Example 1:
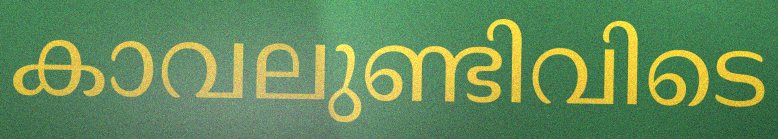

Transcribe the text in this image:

കാവലുണ്ടിവിടെ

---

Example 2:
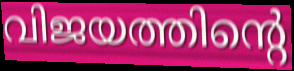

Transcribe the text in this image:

വിജയത്തിന്റെ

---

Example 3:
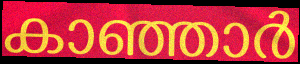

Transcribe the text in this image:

കാഞ്ഞാർ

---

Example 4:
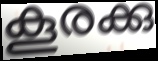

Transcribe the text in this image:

കൂരക്കു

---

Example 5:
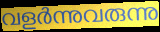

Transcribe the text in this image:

വളർന്നുവരുന്നു